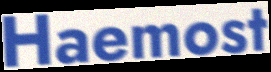
Haemost